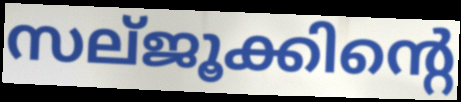
സല്ജൂക്കിന്റെ